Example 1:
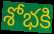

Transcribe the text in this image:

శోభకి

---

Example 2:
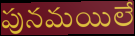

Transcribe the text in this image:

పునమయిలే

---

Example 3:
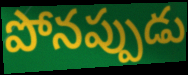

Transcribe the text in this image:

పోనప్పుడు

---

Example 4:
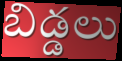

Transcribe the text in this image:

బిడ్డలు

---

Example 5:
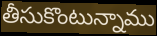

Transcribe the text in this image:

తీసుకొంటున్నాము